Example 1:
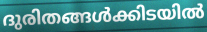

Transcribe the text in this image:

ദുരിതങ്ങൾക്കിടയിൽ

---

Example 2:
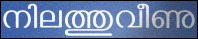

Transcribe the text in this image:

നിലത്തുവീണു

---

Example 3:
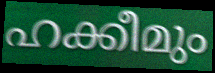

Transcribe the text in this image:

ഹക്കീമും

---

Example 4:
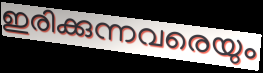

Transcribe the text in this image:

ഇരിക്കുന്നവരെയും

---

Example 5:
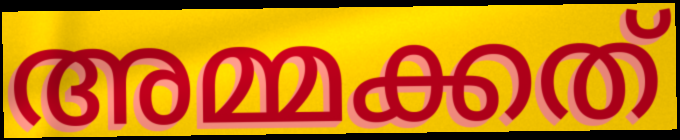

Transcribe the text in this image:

അമ്മക്കത്